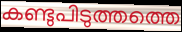
കണ്ടുപിടുത്തത്തെ